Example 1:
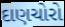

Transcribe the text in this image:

દાણચોરો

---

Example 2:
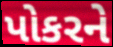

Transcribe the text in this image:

પોકરને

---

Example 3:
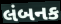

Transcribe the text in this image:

લંબનક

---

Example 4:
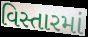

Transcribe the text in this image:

વિસ્તારમાં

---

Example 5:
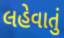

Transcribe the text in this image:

લહેવાતું